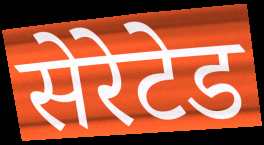
सेरेटेड